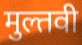
मुल्तवी